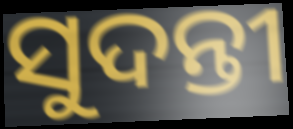
ସୁଦନ୍ତୀ